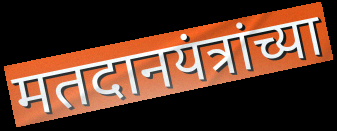
मतदानयंत्रांच्या